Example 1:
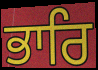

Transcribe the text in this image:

ਭਾਰਿ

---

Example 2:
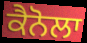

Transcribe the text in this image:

ਕੈਨੋਲਾ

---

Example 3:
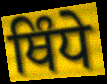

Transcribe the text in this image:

ਥਿੰਧੇ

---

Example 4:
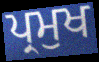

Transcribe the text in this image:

ਪ੍ਰਮੁਖ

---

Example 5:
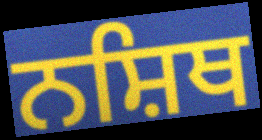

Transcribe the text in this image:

ਨਸ਼ਿਥ